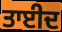
ਤਾਈਦ